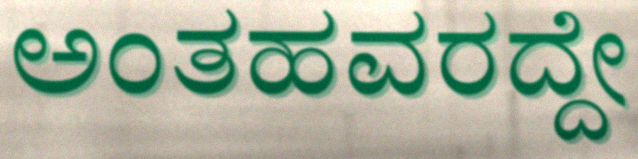
ಅಂತಹವರದ್ದೇ